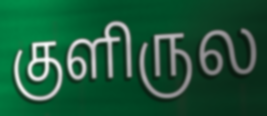
குளிருல